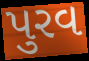
પુરવ